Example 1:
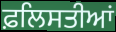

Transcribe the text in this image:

ਫ਼ਲਿਸਤੀਆਂ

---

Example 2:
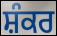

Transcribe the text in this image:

ਸ਼ੰਕਰ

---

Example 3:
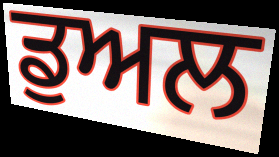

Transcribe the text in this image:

ਡੁਅਲ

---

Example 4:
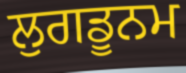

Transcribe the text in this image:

ਲੁਗਡੂਨਮ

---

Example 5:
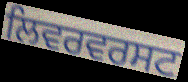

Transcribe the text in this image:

ਲਿਵਰਵਰਸਟ